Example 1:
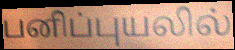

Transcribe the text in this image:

பனிப்புயலில்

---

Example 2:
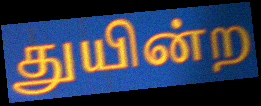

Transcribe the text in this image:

துயின்ற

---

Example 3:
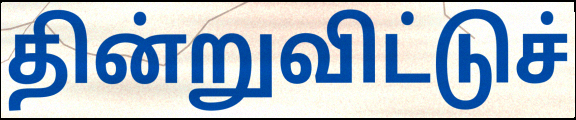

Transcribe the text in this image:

தின்றுவிட்டுச்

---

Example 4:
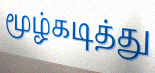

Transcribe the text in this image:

மூழ்கடித்து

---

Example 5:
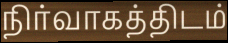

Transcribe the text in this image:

நிர்வாகத்திடம்